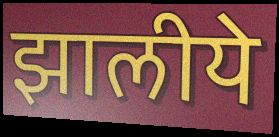
झालीये